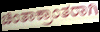
ಚಿಂತಾಕ್ರಾಂತರಾಗಿ